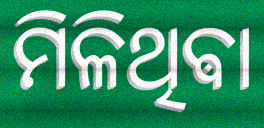
ମିଳିଥିଵା